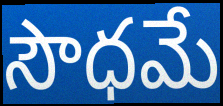
సౌధమే